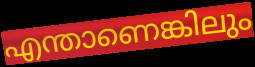
എന്താണെങ്കിലും